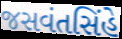
જસવંતસિંહે